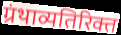
ग्रंथाव्यतिरिक्त